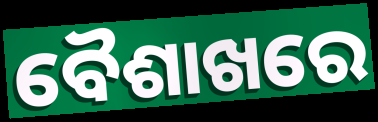
ବୈଶାଖରେ